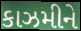
કાઝમીને